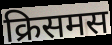
क्रिसमस